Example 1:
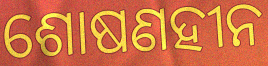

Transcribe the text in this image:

ଶୋଷଣହୀନ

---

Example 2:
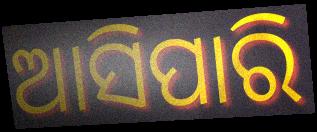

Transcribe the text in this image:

ଆସିପାରି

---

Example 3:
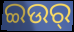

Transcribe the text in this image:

ଇଉର୍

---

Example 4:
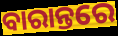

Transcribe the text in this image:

ବାରାନ୍ତରେ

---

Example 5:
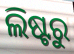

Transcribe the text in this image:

ଲିଷ୍ଟରୁ